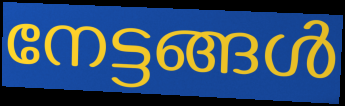
നേട്ടങ്ങൾ